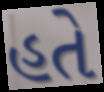
હતે